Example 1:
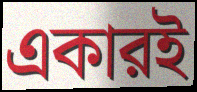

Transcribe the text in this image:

একারই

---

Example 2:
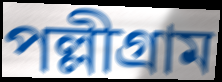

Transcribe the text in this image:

পল্লীগ্রাম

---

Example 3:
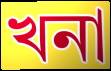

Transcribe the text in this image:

খনা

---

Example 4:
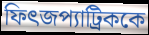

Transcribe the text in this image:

ফিৎজপ্যাট্রিককে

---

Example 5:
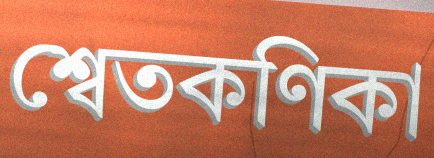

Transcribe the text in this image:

শ্বেতকণিকা